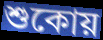
শুকোয়